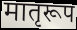
मातृरूप